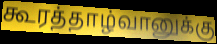
கூரத்தாழ்வானுக்கு